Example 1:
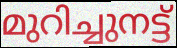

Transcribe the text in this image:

മുറിച്ചുനട്ട്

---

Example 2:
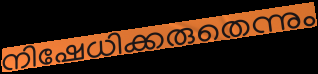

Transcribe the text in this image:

നിഷേധിക്കരുതെന്നും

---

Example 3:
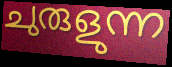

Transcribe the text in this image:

ചുരുളുന്ന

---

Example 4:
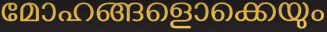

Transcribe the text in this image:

മോഹങ്ങളൊക്കെയും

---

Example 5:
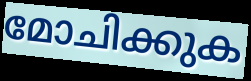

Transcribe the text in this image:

മോചിക്കുക